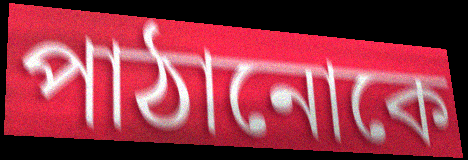
পাঠানোকে